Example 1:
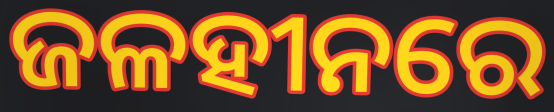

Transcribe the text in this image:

ଜଳହୀନରେ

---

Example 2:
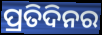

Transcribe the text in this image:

ପ୍ରତିଦିନର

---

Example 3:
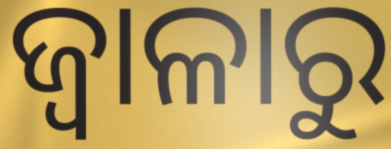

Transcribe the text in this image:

ଜ୍ଵାଳାରୁ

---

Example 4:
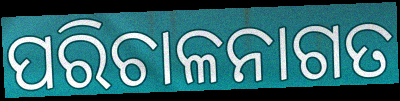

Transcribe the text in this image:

ପରିଚାଳନାଗତ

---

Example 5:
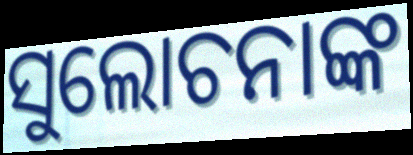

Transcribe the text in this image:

ସୁଲୋଚନାଙ୍କ